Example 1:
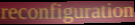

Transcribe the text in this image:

reconfiguration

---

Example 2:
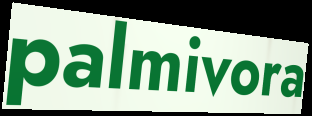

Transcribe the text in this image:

palmivora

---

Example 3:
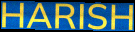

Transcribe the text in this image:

HARISH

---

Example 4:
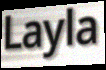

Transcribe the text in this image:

Layla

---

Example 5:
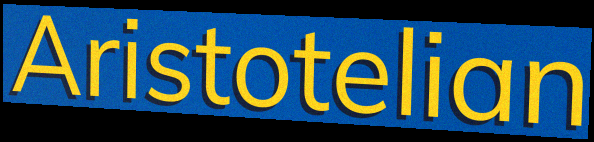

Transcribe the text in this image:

Aristotelian